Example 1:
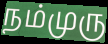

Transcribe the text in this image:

நம்முரு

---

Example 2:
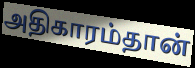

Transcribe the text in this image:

அதிகாரம்தான்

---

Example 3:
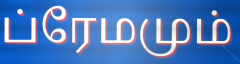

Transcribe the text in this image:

ப்ரேமமும்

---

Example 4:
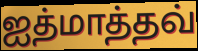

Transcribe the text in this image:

ஐத்மாத்தவ்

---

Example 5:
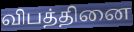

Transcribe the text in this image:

விபத்தினை